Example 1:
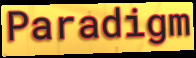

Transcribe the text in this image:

Paradigm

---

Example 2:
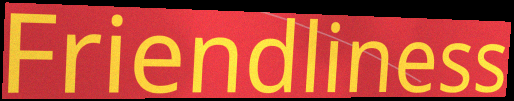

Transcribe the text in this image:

Friendliness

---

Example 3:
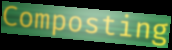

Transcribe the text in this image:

Composting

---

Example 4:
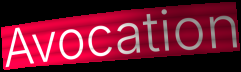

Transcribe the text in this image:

Avocation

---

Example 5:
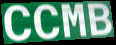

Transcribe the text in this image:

CCMB